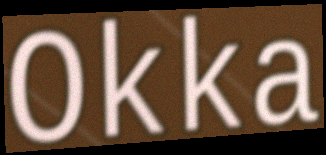
Okka